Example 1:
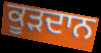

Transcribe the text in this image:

ਕੂੜਦਾਨ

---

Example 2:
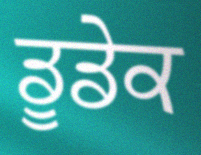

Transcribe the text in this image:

ਡੂਡੇਕ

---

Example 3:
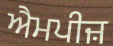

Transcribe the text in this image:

ਐਮਪੀਜ਼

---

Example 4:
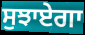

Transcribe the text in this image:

ਸੁਝਾਏਗਾ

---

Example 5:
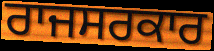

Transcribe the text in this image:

ਰਾਜਸਰਕਾਰ